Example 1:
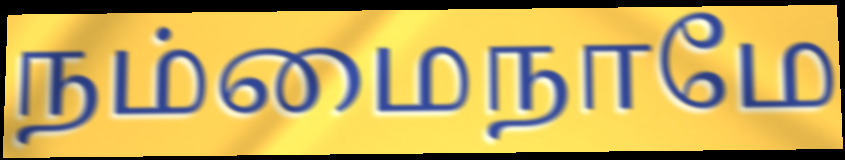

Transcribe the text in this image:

நம்மைநாமே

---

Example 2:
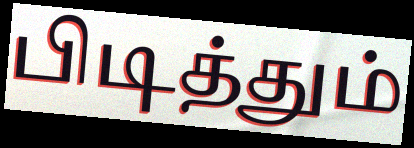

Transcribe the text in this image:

பிடித்தும்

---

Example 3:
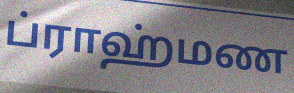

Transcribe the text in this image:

ப்ராஹ்மண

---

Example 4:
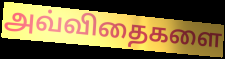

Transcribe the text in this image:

அவ்விதைகளை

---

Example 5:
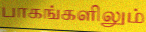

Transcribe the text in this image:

பாகங்களிலும்